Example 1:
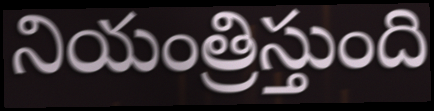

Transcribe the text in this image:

నియంత్రిస్తుంది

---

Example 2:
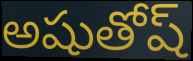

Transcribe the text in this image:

అషుతోష్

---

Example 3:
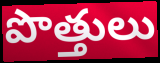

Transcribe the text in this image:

పొత్తులు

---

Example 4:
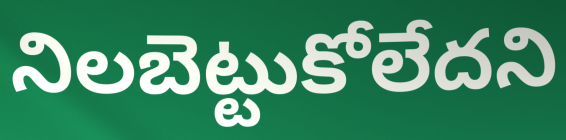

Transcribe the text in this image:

నిలబెట్టుకోలేదని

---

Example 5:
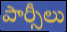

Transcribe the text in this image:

పార్సీలు